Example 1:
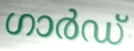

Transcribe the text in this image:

ഗാർഡ്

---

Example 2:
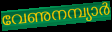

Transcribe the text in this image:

വേണുനമ്പ്യാർ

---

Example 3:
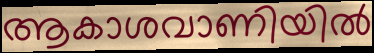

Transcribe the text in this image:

ആകാശവാണിയിൽ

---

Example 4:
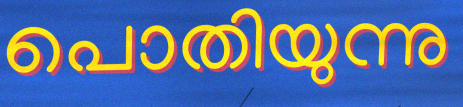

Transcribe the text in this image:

പൊതിയുന്നു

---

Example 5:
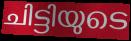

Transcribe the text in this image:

ചിട്ടിയുടെ